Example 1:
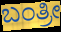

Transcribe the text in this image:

ಬಂತ್ರೀ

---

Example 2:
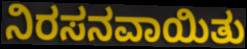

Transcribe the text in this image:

ನಿರಸನವಾಯಿತು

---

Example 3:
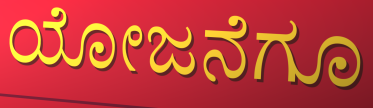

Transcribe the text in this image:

ಯೋಜನೆಗೂ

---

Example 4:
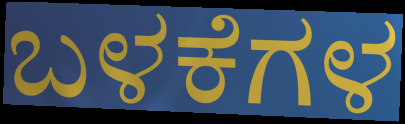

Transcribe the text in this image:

ಬಳಕೆಗಳ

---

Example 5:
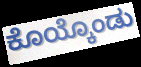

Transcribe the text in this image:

ಕೊಯ್ಕೊಂಡು